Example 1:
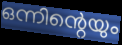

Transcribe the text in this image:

ഒന്നിന്റെയും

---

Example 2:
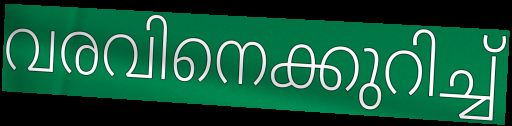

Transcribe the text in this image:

വരവിനെക്കുറിച്ച്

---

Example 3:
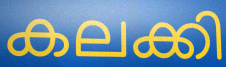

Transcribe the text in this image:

കലക്കി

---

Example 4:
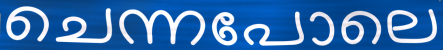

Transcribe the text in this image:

ചെന്നപോലെ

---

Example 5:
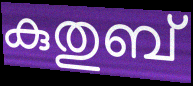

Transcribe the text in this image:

കുതുബ്